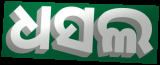
ଧସଲ